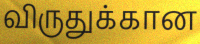
விருதுக்கான